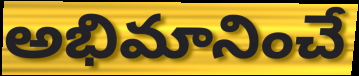
అభిమానించే